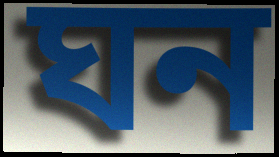
ঘন